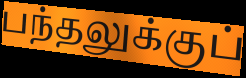
பந்தலுக்குப்